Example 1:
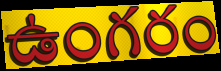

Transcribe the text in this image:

ఉంగరం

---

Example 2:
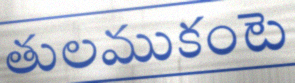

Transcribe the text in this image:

తులముకంటె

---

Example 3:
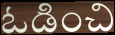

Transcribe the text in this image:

ఓడించి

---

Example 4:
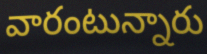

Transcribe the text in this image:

వారంటున్నారు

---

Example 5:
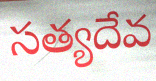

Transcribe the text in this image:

సత్యదేవ